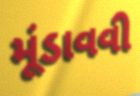
મૂંડાવવી